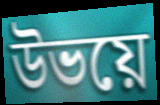
উভয়ে